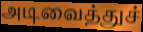
அடிவைத்துச்